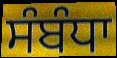
ਸੰਬੰਧਾ